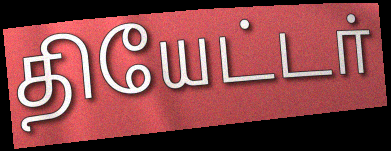
தியேட்டர்